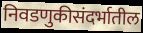
निवडणुकीसंदर्भातील